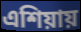
এশিয়ায়